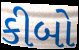
કીબો